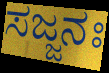
ಸಜ್ಜನಃ